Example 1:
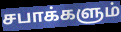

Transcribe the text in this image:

சபாக்களும்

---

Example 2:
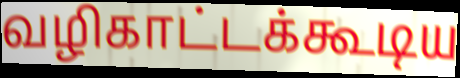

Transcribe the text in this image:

வழிகாட்டக்கூடிய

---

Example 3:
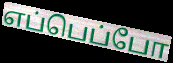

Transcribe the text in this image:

எப்பெப்போ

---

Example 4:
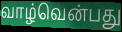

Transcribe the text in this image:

வாழ்வென்பது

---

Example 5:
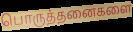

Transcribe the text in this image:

பொருத்தனைகளை